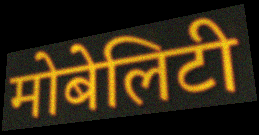
मोबेलिटी